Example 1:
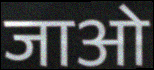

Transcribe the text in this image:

जाओ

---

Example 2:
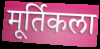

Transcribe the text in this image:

मूर्तिकला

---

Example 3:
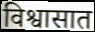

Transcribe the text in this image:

विश्वासात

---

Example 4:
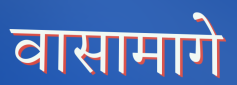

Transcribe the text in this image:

वासामागे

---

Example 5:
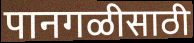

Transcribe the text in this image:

पानगळीसाठी